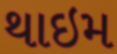
થાઇમ